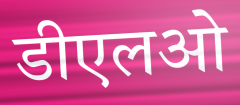
डीएलओ